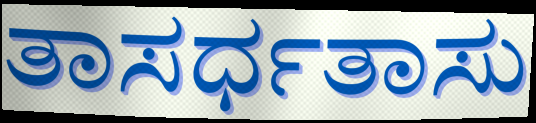
ತಾಸರ್ಧತಾಸು